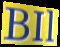
BIl